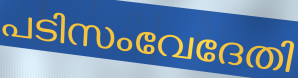
പടിസംവേദേതി